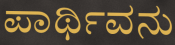
ಪಾರ್ಥಿವನು